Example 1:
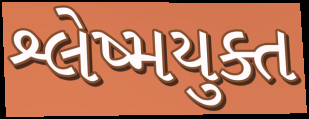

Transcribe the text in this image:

શ્લેષ્મયુક્ત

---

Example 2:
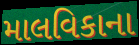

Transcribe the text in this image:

માલવિકાના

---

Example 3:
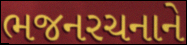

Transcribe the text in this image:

ભજનરચનાને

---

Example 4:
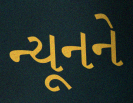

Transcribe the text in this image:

ન્યૂનને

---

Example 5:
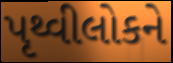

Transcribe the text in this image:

પૃથ્વીલોકને